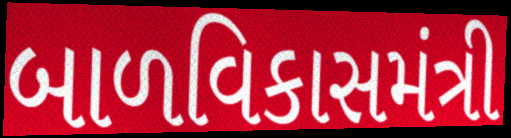
બાળવિકાસમંત્રી